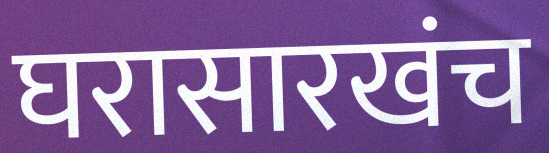
घरासारखंच